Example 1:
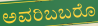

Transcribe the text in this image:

ಅವರಿಬಬರೊ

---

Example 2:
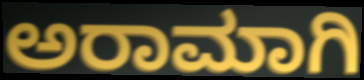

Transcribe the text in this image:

ಅರಾಮಾಗಿ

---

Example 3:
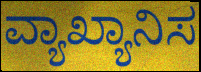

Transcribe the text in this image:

ವ್ಯಾಖ್ಯಾನಿಸ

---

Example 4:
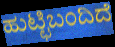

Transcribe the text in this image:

ಹುಟ್ಟಿಬಂದಿದೆ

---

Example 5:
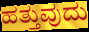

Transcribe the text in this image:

ಹತ್ತುವುದು